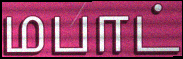
மபாட்